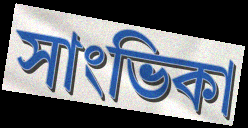
সাংভিকা